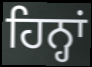
ਹਿਨ੍ਹਾਂ